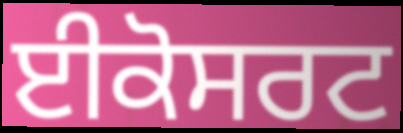
ਈਕੋਸਰਟ